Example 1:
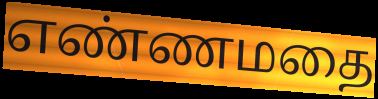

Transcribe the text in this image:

எண்ணமதை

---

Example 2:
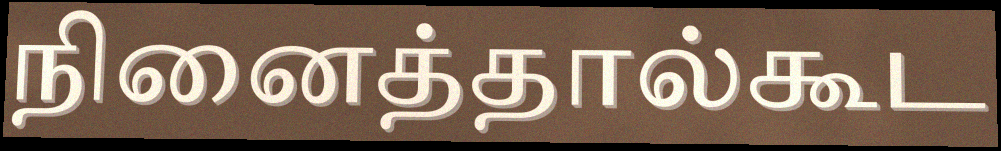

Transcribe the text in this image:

நினைத்தால்கூட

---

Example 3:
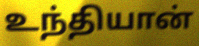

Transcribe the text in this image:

உந்தியான்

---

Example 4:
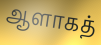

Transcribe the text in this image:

ஆளாகத்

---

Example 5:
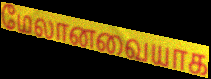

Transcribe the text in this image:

மேலானவையாக